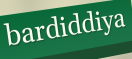
bardiddiya